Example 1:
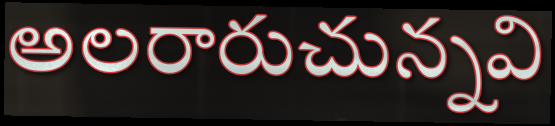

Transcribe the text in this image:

అలరారుచున్నవి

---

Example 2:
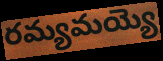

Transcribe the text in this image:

రమ్యమయ్యె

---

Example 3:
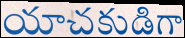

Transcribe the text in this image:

యాచకుడిగా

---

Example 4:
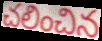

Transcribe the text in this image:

చలించిన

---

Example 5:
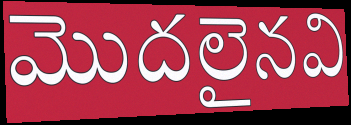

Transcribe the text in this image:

మొదలైనవి